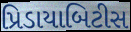
પ્રિડાયાબિટીસ